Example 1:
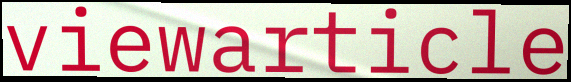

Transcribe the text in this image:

viewarticle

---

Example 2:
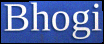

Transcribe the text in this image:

Bhogi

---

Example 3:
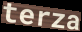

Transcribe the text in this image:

terza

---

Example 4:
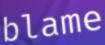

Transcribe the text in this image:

blame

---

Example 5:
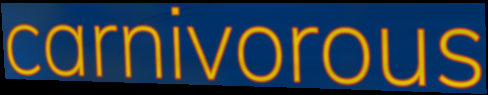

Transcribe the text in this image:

carnivorous